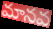
మానవ